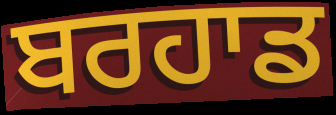
ਬਰਹਾਡ